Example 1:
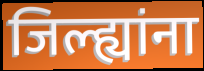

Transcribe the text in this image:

जिल्ह्यांना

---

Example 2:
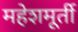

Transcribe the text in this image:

महेशमूर्ती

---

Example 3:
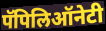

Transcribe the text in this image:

पॅपिलिऑनेटी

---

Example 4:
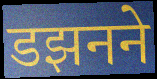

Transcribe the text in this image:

डझनने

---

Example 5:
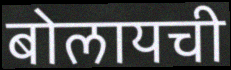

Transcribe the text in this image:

बोलायची